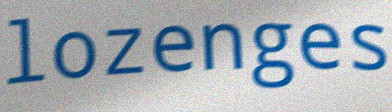
lozenges